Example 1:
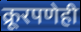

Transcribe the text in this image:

क्रूरपणेही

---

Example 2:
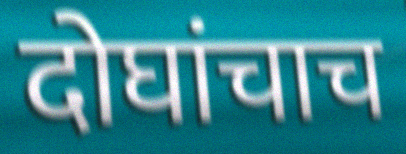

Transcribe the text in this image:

दोघांचाच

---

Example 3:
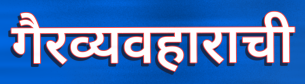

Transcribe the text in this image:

गैरव्यवहाराची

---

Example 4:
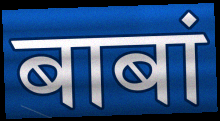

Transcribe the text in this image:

बाबां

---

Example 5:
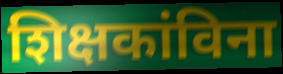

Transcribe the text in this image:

शिक्षकांविना